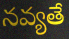
నవ్యతే